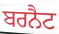
ਬਰਨੈਟ